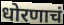
धोरणाचं